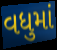
વધુમાં